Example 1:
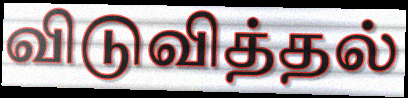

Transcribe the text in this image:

விடுவித்தல்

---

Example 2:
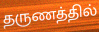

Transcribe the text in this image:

தருணத்தில்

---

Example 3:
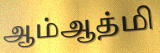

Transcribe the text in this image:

ஆம்ஆத்மி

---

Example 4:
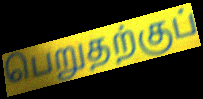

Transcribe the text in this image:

பெறுதற்குப்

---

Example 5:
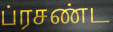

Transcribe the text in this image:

ப்ரசண்ட